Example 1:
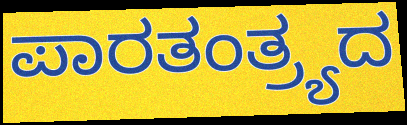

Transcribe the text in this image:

ಪಾರತಂತ್ರ್ಯದ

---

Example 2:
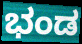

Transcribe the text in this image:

ಭಂಡ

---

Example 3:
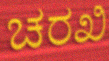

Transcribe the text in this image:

ಚರಖಿ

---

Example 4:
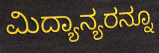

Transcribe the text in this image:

ಮಿದ್ಯಾನ್ಯರನ್ನೂ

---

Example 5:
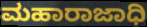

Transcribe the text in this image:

ಮಹಾರಾಜಾಧಿ